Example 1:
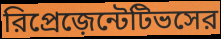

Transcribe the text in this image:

রিপ্রেজ়েন্টেটিভসের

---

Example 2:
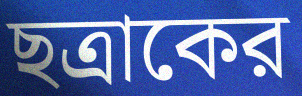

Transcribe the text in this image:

ছত্রাকের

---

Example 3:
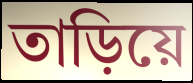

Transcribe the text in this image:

তাড়িয়ে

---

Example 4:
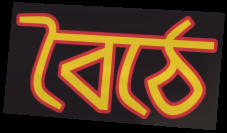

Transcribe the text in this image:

বৈঠে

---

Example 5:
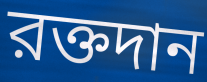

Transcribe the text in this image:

রক্তদান